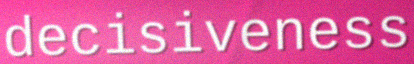
decisiveness